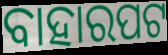
ବାହାରପଟ